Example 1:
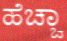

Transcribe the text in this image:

ಹೆಚ್ಚಾ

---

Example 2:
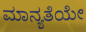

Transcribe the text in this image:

ಮಾನ್ಯತೆಯೇ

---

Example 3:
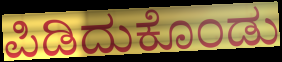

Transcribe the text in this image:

ಪಿಡಿದುಕೊಂಡು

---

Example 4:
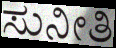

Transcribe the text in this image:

ಸುನೀತಿ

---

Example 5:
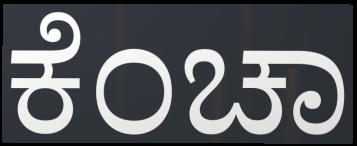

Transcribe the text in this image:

ಕೆಂಚಾ